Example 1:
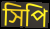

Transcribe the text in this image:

সিপি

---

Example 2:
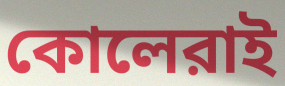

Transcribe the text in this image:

কোলেরাই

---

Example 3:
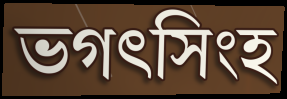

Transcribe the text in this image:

ভগৎসিংহ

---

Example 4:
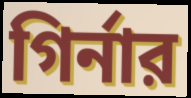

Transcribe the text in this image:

গির্নার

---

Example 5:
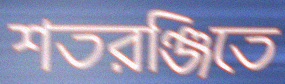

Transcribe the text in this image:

শতরঞ্জিতে